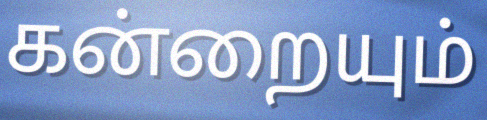
கன்றையும்